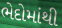
ભેદોમાંથી